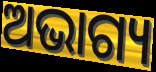
ଅଭାଗ୍ୟ